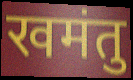
खमंतु